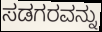
ಸಡಗರವನ್ನು